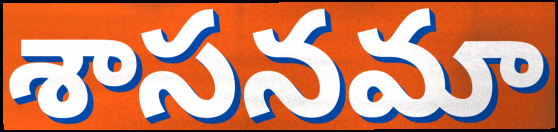
శాసనమా